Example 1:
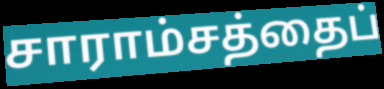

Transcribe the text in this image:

சாராம்சத்தைப்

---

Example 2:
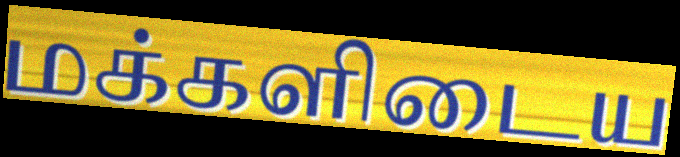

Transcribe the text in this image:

மக்களிடைய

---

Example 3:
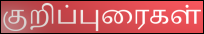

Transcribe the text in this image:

குறிப்புரைகள்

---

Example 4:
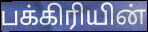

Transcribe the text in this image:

பக்கிரியின்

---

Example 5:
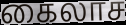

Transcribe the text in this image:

கைலாச